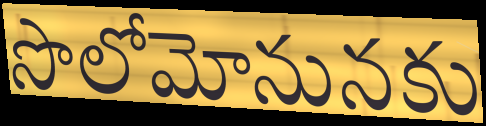
సొలోమోనునకు